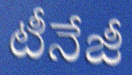
టీనేజీ